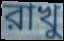
রাখু